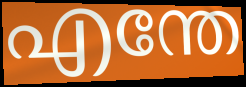
എന്തേ